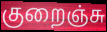
குறைஞ்சு